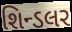
શિન્ડલર